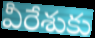
వీరేశుకు